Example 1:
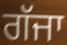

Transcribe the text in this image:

ਗੱਜਾ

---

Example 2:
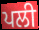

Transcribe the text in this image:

ਪਲੀ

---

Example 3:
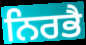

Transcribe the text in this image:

ਨਿਰਭੈ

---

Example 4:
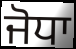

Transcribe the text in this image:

ਜੋਧਾ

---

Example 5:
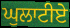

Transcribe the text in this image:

ਘੁਲਾਟੀਏ